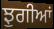
ਝੁਗੀਆਂ